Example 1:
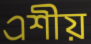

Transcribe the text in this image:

এশীয়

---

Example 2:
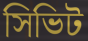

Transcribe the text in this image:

সিভিট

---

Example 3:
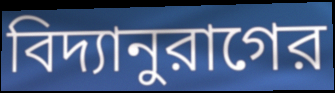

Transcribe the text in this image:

বিদ্যানুরাগের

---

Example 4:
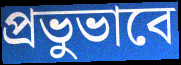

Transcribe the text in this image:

প্রভুভাবে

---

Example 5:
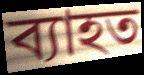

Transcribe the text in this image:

ব্যাহত